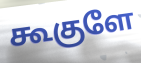
கூகுளே